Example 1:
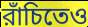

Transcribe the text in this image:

রাঁচিতেও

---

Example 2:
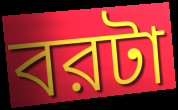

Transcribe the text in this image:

বরটা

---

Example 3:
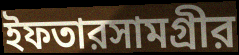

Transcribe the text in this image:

ইফতারসামগ্রীর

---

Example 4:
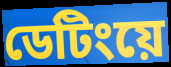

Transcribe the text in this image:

ডেটিংয়ে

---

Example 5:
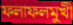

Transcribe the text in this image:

ফলাফলমুখী